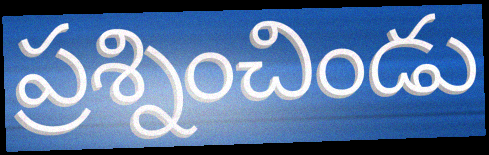
ప్రశ్నించిండు